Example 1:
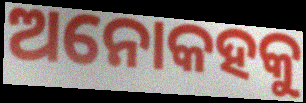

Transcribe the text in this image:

ଅନୋକହକୁ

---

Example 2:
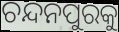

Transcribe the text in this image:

ଚନ୍ଦନପୁରକୁ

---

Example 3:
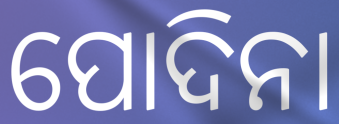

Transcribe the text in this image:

ପୋଦିନା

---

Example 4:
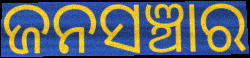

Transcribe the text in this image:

ଜନସଞ୍ଚାର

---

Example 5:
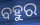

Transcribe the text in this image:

ବହୁର